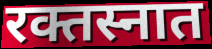
रक्तस्नात